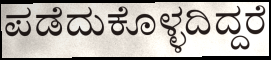
ಪಡೆದುಕೊಳ್ಳದಿದ್ದರೆ